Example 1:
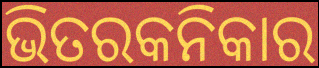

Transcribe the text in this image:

ଭିତରକନିକାର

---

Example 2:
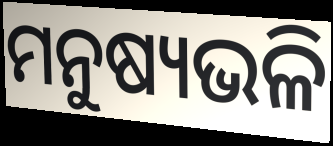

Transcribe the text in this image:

ମନୁଷ୍ୟଭଳି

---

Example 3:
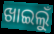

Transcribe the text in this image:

ଖାଇଲୁଁ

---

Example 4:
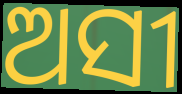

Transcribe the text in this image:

ଅସୀ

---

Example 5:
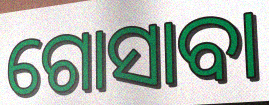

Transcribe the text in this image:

ଗୋସାବା